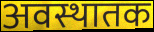
अवस्थातक